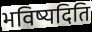
भविष्यदिति